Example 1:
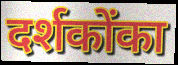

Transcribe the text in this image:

दर्शकोंका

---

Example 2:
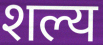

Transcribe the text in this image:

शल्य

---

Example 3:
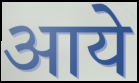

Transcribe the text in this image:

आये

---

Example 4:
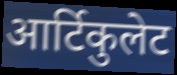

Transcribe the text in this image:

आर्टिकुलेट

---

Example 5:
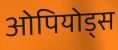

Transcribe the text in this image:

ओपियोड्स